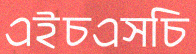
এইচএসচি